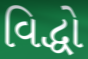
વિદ્ધો